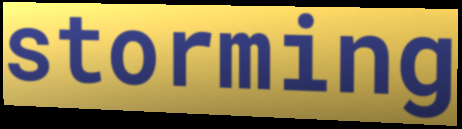
storming